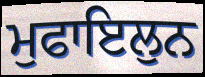
ਮੁਫਾਇਲੁਨ